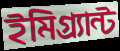
ইমিগ্র্যান্ট